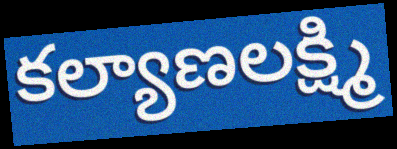
కల్యాణలక్ష్మి